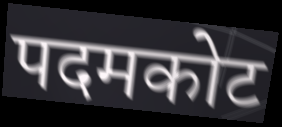
पदमकोट